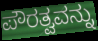
ಪೌರತ್ವವನ್ನು